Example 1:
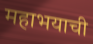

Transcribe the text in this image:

महाभयाची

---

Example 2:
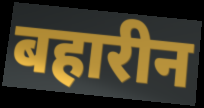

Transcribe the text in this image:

बहारीन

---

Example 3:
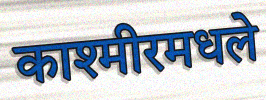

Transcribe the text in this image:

काश्‍मीरमधले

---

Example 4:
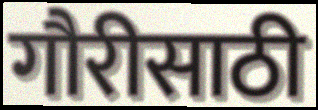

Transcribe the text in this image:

गौरीसाठी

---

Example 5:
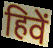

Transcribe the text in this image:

हिवें